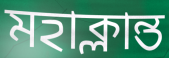
মহাক্লান্ত